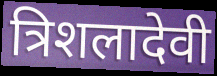
त्रिशलादेवी